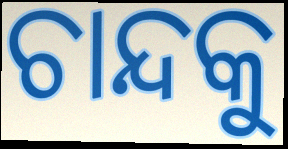
ଚାନ୍ଦକୁ